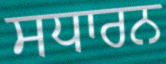
ਸਧਾਰਨ